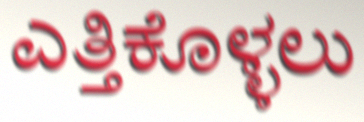
ಎತ್ತಿಕೊಳ್ಳಲು